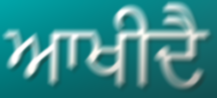
ਆਖੀਦੈ